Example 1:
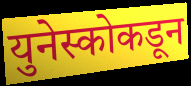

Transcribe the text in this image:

युनेस्कोकडून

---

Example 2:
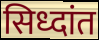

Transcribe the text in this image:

सिध्दांत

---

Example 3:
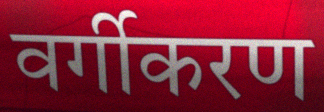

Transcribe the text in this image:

वर्गीकरण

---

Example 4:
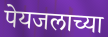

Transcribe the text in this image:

पेयजलाच्या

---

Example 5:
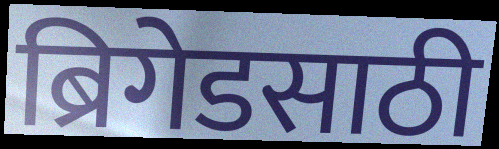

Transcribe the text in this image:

ब्रिगेडसाठी